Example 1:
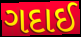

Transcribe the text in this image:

ગદાઈ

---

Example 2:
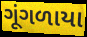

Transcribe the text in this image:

ગૂંગળાયા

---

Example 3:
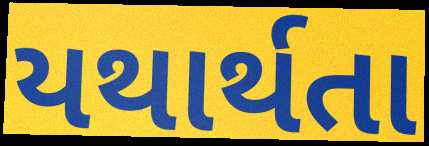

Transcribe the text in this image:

યથાર્થતા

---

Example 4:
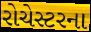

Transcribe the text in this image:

રોચેસ્ટરના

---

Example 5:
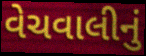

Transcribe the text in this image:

વેચવાલીનું